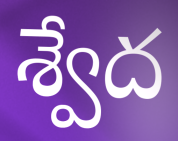
శ్వేద